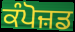
ਕੰਪੋਜ਼ਡ